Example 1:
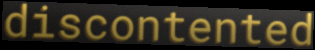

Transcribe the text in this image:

discontented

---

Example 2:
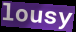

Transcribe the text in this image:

lousy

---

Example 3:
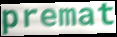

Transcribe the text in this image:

premat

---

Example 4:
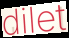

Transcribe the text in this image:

dilet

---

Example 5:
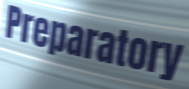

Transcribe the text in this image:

Preparatory